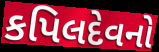
કપિલદેવનો